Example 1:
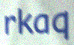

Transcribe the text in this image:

rkaq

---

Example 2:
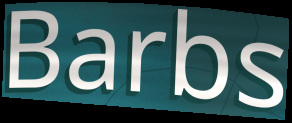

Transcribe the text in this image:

Barbs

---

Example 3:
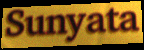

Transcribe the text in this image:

Sunyata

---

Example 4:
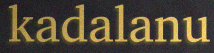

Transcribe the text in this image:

kadalanu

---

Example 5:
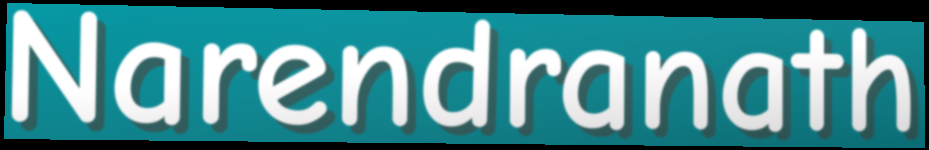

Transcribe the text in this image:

Narendranath